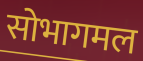
सोभागमल